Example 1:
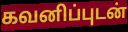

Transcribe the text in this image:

கவனிப்புடன்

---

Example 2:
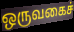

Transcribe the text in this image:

ஒருவகைச்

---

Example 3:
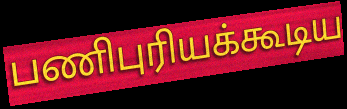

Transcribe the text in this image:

பணிபுரியக்கூடிய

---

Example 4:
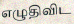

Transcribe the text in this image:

எழுதிவிட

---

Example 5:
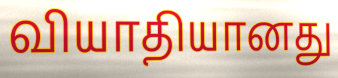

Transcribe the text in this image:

வியாதியானது